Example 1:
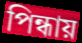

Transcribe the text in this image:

পিন্ধায়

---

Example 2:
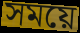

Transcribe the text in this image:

সময়ে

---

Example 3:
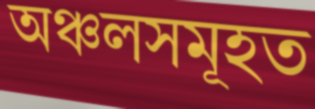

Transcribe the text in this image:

অঞ্চলসমূহত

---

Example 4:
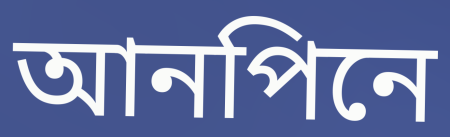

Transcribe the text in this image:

আনপিনে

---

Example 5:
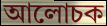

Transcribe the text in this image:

আলোচক